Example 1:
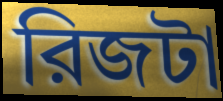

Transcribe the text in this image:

রিজটা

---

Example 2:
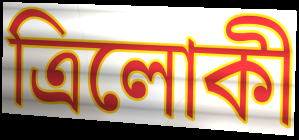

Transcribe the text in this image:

ত্রিলোকী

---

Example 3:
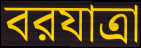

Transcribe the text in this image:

বরযাত্রা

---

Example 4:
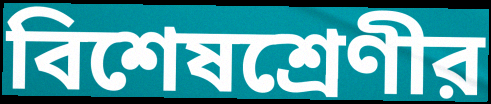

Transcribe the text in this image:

বিশেষশ্রেণীর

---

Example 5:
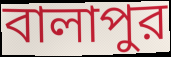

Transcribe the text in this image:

বালাপুর